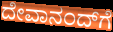
ದೇವಾನಂದ್‌ಗೆ